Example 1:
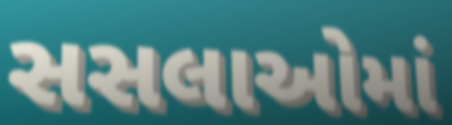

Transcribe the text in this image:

સસલાઓમાં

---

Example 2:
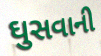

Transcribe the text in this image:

ઘુસવાની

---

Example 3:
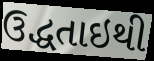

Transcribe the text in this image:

ઉદ્ધતાઇથી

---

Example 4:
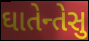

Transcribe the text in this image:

ઘાતેન્તેસુ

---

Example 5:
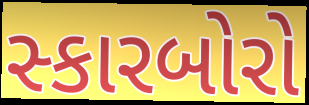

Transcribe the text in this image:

સ્કારબોરો